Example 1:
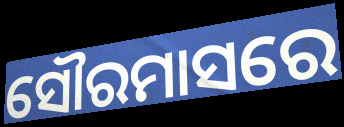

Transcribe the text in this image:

ସୌରମାସରେ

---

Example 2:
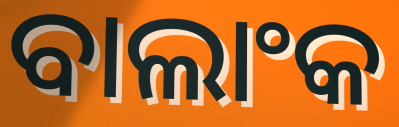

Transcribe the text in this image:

ବାଲାଂକ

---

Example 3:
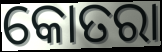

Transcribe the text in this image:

କୋତରା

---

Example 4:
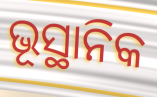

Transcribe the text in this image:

ଭୂସ୍ଥାନିକ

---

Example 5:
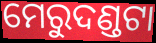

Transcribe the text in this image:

ମେରୁଦଣ୍ଡଟା